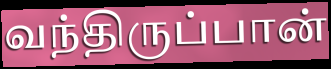
வந்திருப்பான்